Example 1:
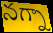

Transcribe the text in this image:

నగ్నా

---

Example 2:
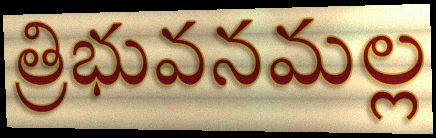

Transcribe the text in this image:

త్రిభువనమల్ల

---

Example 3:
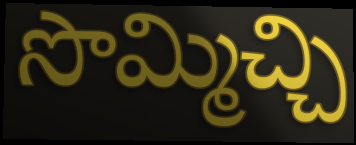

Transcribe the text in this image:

సొమ్మిచ్చి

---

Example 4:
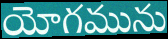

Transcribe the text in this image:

యోగమును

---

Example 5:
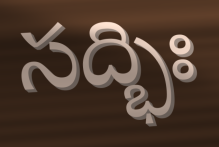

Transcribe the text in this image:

సద్భిః